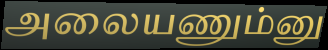
அலையணும்னு